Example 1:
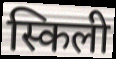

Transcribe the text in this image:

स्किली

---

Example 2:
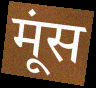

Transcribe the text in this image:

मूंस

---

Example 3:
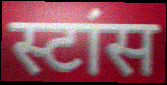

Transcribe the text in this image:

स्टांस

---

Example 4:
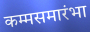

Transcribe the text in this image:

कम्मसमारंभा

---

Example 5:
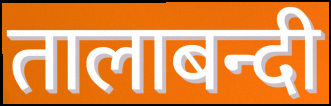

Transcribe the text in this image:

तालाबन्दी